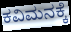
ಕವಿಮನಕ್ಕೆ